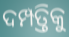
ଦମ୍ପତ୍ତିକୁ